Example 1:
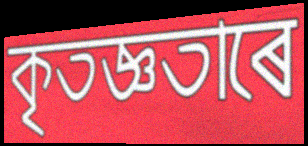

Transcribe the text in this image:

কৃতজ্ঞতাৰে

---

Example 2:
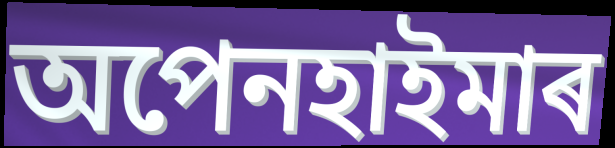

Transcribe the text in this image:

অপেনহাইমাৰ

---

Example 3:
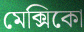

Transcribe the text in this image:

মেক্সিকো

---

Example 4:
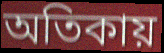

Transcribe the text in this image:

অতিকায়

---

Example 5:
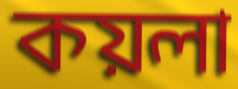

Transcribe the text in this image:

কয়লা